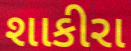
શાકીરા